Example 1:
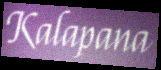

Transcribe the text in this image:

Kalapana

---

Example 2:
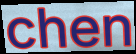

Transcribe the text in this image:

chen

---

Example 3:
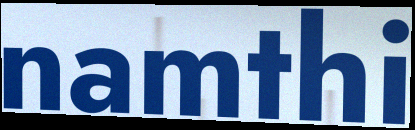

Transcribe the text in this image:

namthi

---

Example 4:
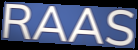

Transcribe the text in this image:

RAAS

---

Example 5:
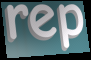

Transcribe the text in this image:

rep